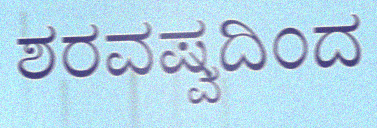
ಶರವಷ್ವದಿಂದ